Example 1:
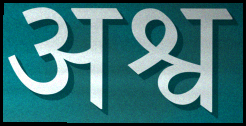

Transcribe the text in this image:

अश्व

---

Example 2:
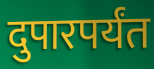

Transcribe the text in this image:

दुपारपर्यंत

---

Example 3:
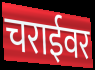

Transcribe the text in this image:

चराईवर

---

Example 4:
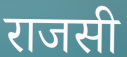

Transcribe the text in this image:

राजसी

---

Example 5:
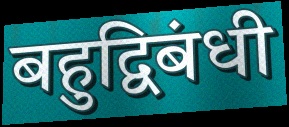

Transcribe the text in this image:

बहुद्विबंधी